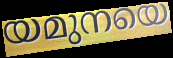
യമുനയെ